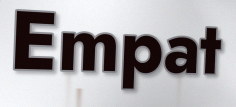
Empat